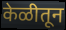
केळीतून